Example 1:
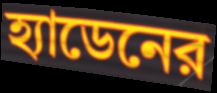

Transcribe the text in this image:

হ্যাডেনের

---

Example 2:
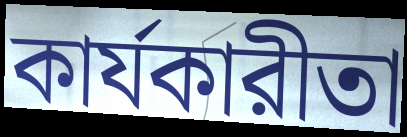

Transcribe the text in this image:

কার্যকারীতা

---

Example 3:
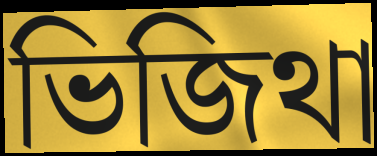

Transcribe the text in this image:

ভিজিথা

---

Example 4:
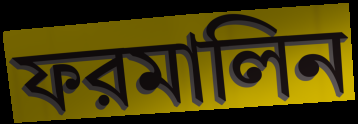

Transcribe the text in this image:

ফরমালিন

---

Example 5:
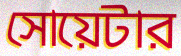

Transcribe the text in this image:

সোয়েটার